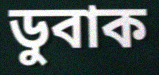
ডুবাক